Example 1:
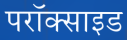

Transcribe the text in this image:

परॉक्साइड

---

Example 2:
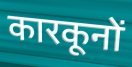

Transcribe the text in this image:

कारकूनों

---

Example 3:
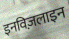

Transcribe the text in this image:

इनविज़लाइन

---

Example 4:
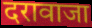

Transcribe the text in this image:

दरावाजा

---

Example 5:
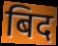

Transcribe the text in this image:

बिद